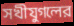
সখীযুগলের